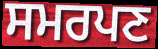
ਸਮਰਪਣ